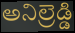
అనిల్రెడ్డి